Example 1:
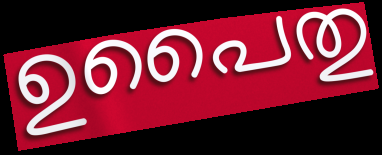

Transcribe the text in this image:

ഉപൈതു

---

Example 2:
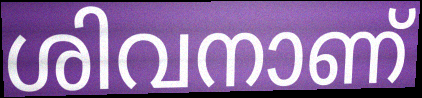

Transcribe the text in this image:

ശിവനാണ്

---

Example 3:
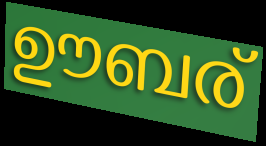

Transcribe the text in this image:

ഊബര്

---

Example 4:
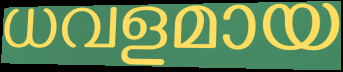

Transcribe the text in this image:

ധവളമായ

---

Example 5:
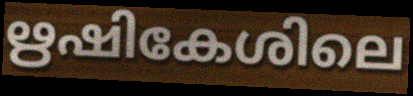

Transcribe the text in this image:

ഋഷികേശിലെ